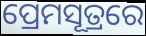
ପ୍ରେମସୂତ୍ରରେ